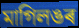
মাগিলঙৰ